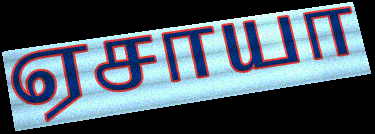
ஏசாயா